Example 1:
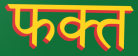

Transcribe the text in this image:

फक्त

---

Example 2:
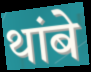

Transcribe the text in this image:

थांबे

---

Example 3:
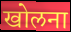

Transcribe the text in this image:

खोलना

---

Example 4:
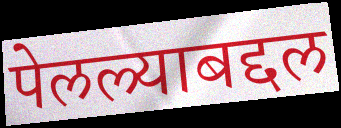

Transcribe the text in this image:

पेलल्याबद्दल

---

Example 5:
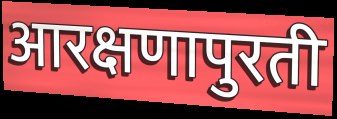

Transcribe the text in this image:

आरक्षणापुरती